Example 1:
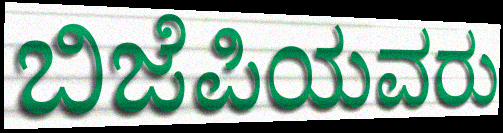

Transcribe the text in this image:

ಬಿಜೆಪಿಯವರು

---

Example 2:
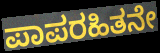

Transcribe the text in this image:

ಪಾಪರಹಿತನೇ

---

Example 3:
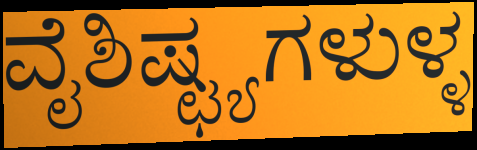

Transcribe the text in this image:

ವೈಶಿಷ್ಟ್ಯಗಳುಳ್ಳ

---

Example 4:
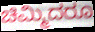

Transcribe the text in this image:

ಚಿಮ್ಮಿದರೂ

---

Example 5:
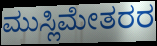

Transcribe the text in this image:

ಮುಸ್ಲಿಮೇತರರ